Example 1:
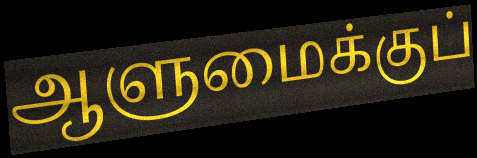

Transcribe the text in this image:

ஆளுமைக்குப்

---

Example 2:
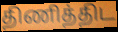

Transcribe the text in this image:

திணித்திட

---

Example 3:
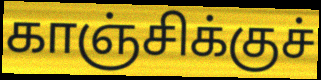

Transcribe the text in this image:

காஞ்சிக்குச்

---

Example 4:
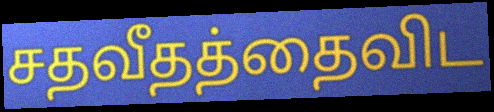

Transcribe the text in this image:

சதவீதத்தைவிட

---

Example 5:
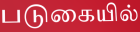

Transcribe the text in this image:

படுகையில்